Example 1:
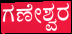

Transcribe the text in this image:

ಗಣೇಶ್ವರ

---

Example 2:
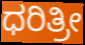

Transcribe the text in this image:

ಧರಿತ್ರೀ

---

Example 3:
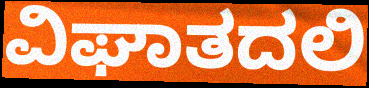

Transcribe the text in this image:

ವಿಘಾತದಲಿ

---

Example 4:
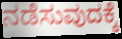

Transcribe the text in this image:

ನಡೆಸುವುದಕ್ಕೆ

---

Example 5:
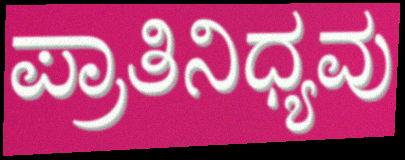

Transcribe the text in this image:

ಪ್ರಾತಿನಿಧ್ಯವು